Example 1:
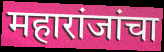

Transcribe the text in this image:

महारांजांचा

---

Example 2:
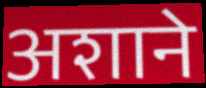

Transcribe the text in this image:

अशाने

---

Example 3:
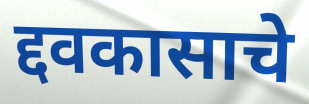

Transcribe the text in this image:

द्दवकासाचे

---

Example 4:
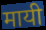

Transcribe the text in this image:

मायी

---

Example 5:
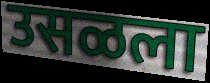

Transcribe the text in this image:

उसळला